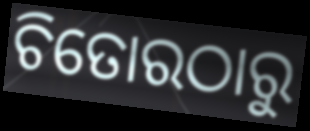
ଚିତୋରଠାରୁ